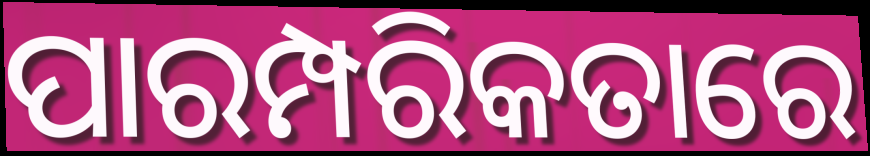
ପାରମ୍ପରିକତାରେ